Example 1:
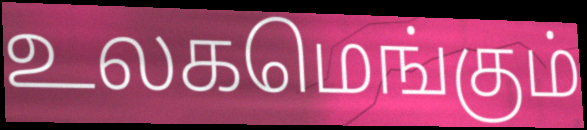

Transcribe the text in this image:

உலகமெங்கும்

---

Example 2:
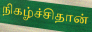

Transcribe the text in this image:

நிகழ்ச்சிதான்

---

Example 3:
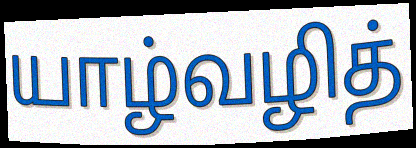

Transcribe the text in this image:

யாழ்வழித்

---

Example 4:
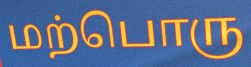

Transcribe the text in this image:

மற்பொரு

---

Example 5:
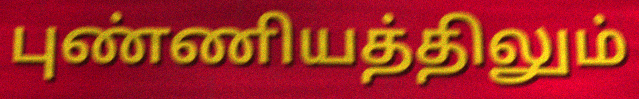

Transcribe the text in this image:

புண்ணியத்திலும்